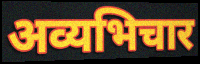
अव्यभिचार